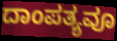
ದಾಂಪತ್ಯವೂ